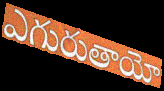
ఎగురుతాయో